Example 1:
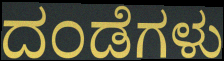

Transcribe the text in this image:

ದಂಡೆಗಳು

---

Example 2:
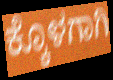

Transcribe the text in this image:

ಕ್ಕೊಳಗಾಗಿ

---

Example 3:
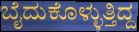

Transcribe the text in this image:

ಬೈದುಕೊಳ್ಳುತ್ತಿದ್ದ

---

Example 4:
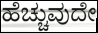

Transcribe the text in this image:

ಹೆಚ್ಚುವುದೇ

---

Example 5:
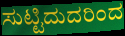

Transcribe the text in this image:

ಸುಟ್ಟಿದುದರಿಂದ